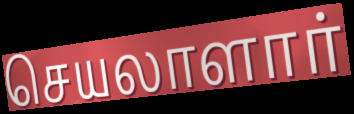
செயலாளார்